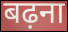
बढ़ना